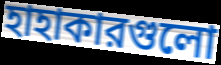
হাহাকারগুলো